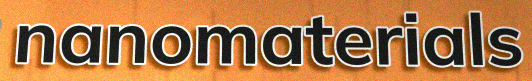
nanomaterials